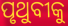
ପୃଥୁବୀକୁ